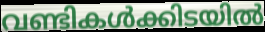
വണ്ടികൾക്കിടയിൽ